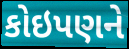
કોઇપણને